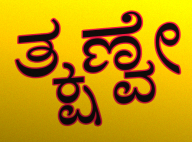
ತ್ಕ್ಷಣ್ವೇ